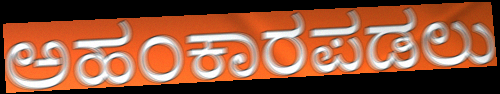
ಅಹಂಕಾರಪಡಲು